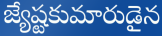
జ్యేష్టకుమారుడైన